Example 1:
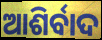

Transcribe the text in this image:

ଆଶିର୍ବାଦ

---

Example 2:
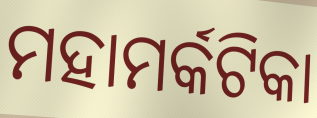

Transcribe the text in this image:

ମହାମର୍କଟିକା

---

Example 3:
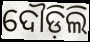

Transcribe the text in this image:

ଦୌଡ଼ିଲି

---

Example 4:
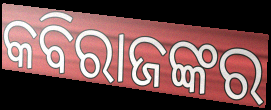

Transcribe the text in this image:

କବିରାଜଙ୍କର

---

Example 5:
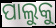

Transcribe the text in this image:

ପାଲୁକୁ